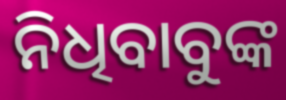
ନିଧିବାବୁଙ୍କ